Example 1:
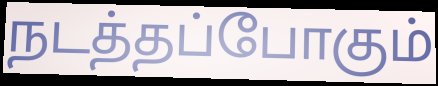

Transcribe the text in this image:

நடத்தப்போகும்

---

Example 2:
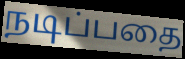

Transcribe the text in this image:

நடிப்பதை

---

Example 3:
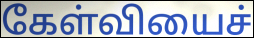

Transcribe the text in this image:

கேள்வியைச்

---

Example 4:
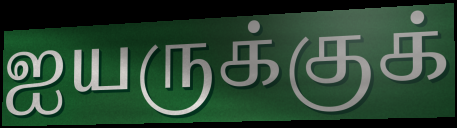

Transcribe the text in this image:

ஐயருக்குக்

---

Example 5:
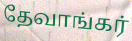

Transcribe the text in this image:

தேவாங்கர்